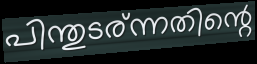
പിന്തുടര്ന്നതിന്റെ